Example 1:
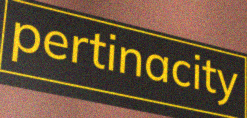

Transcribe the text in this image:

pertinacity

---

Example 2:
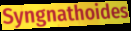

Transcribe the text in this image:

Syngnathoides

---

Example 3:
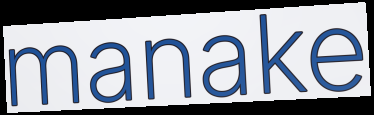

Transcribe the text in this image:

manake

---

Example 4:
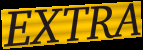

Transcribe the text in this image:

EXTRA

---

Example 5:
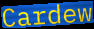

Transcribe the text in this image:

Cardew